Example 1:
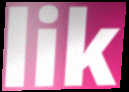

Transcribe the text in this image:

lik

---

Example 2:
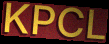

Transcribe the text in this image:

KPCL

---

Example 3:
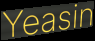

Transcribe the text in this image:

Yeasin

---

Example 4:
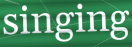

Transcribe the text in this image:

singing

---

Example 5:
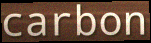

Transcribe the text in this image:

carbon